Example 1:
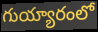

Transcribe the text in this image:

గుయ్యారంలో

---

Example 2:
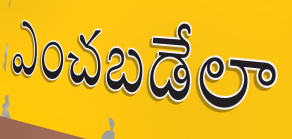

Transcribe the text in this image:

ఎంచబడేలా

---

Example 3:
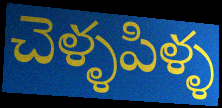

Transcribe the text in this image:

చెళ్ళపిళ్ళ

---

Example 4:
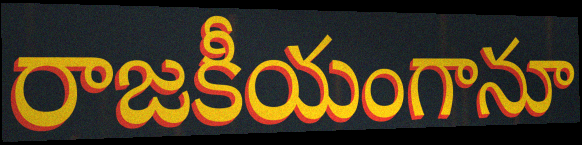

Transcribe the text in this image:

రాజకీయంగానూ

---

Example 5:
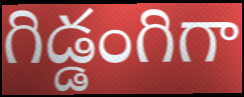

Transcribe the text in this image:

గిడ్డంగిగా